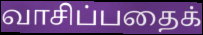
வாசிப்பதைக்